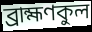
ব্রাহ্মণকুল